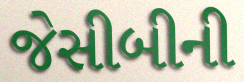
જેસીબીની